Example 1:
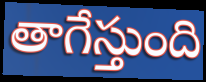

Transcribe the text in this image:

తాగేస్తుంది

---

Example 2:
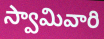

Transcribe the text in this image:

స్వామివారి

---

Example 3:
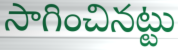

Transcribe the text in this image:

సాగించినట్టు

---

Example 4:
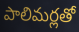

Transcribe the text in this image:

పాలిమర్లతో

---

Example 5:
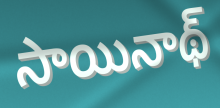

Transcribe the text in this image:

సాయినాథ్